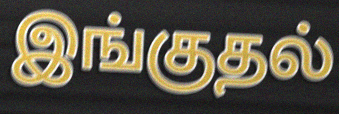
இங்குதல்